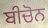
ਬੀਚੋਨ